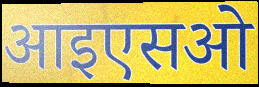
आइएसओ